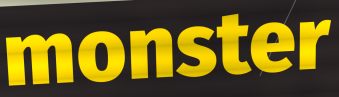
monster